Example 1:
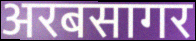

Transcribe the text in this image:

अरबसागर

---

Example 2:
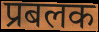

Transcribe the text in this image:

प्रबलक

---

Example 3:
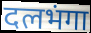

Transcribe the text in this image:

दलभंगा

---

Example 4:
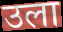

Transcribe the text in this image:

उला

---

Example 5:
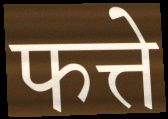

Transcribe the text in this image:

फत्ते